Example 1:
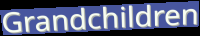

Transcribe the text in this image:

Grandchildren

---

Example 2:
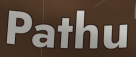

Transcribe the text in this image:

Pathu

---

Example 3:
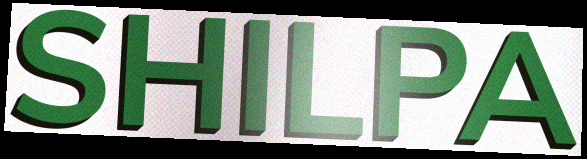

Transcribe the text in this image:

SHILPA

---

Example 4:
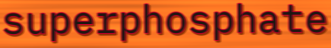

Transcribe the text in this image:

superphosphate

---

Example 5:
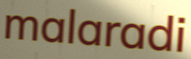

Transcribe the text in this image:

malaradi